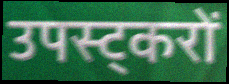
उपस्ट्करों